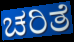
ಚರಿತೆ